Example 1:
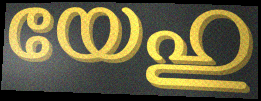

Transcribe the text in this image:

യേഹു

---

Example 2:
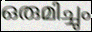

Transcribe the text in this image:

ഒരുമിച്ചും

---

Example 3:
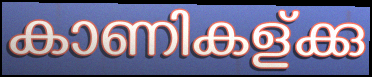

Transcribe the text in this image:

കാണികള്ക്കു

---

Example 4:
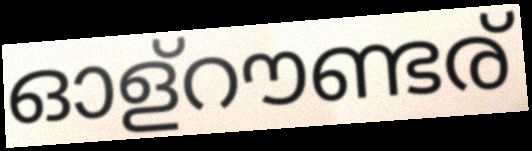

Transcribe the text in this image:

ഓള്റൗണ്ടര്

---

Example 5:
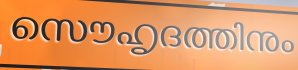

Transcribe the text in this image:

സൌഹൃദത്തിനും